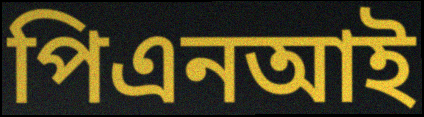
পিএনআই